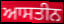
ਆਸਤੀਨ